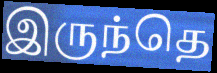
இருந்தெ